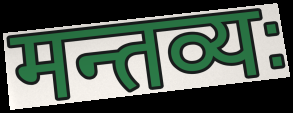
मन्तव्यः